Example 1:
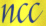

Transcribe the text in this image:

ncc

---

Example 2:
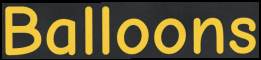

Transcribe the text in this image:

Balloons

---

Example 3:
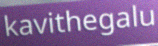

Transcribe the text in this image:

kavithegalu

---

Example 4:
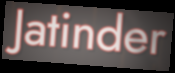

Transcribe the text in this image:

Jatinder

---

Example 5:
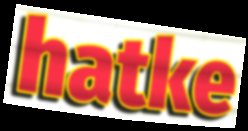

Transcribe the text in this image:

hatke